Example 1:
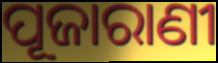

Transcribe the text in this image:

ପୂଜାରାଣୀ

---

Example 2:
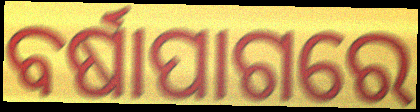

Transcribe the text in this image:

ବର୍ଷାପାଗରେ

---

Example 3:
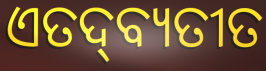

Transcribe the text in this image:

ଏତଦ୍‌ବ୍ୟତୀତ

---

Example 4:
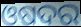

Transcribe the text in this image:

ଓଷଦର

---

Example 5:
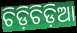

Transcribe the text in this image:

ଚିଡ଼ିଚିଡ଼ିଆ